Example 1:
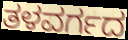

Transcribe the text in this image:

ತಳವರ್ಗದ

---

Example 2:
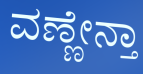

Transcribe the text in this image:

ವಣ್ಣೇನ್ತಾ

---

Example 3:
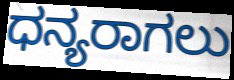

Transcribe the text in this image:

ಧನ್ಯರಾಗಲು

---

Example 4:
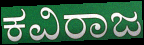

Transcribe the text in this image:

ಕವಿರಾಜ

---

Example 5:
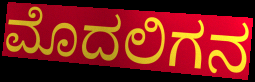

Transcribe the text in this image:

ಮೊದಲಿಗನ